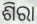
ଶିରା